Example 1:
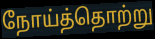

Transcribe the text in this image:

நோய்த்தொற்று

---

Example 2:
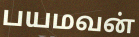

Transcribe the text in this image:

பயமவன்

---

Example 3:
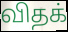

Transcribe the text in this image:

விதக்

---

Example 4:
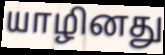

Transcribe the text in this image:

யாழினது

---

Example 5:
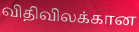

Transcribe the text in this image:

விதிவிலக்கான